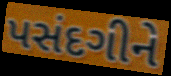
પસંદગીને